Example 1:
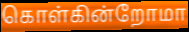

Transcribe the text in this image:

கொள்கின்றோமா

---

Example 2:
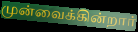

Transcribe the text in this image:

முன்வைக்கின்றார்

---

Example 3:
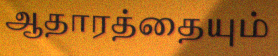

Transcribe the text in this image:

ஆதாரத்தையும்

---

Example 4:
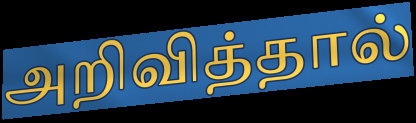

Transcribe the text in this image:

அறிவித்தால்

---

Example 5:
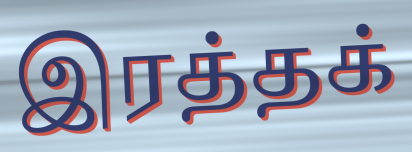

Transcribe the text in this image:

இரத்தக்